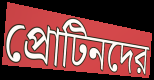
প্রোটিনদের